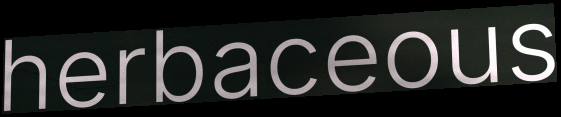
herbaceous